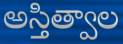
అస్తిత్వాల